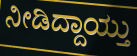
ನೀಡಿದ್ದಾಯ್ತು